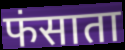
फंसाता